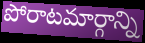
పోరాటమార్గాన్ని